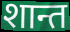
शान्त